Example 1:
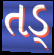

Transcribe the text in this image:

તડ્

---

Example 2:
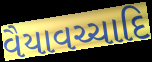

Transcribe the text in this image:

વૈયાવચ્ચાદિ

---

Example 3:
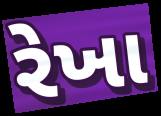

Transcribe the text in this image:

રેખા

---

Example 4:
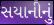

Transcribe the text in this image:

સયાનીનું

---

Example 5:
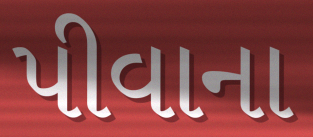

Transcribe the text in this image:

પીવાના